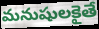
మనుషులకైతే